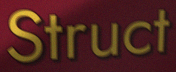
Struct